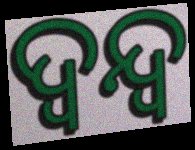
ଦ୍ବନ୍ଦ୍ବ